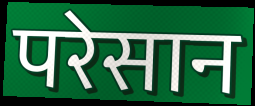
परेसान